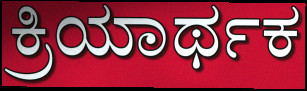
ಕ್ರಿಯಾರ್ಥಕ